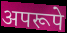
अपरूपे